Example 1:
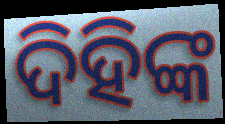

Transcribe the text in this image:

ଦିହିଙ୍କ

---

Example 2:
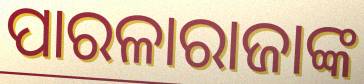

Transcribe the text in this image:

ପାରଳାରାଜାଙ୍କ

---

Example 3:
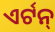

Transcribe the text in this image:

ଏର୍ଟନ୍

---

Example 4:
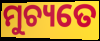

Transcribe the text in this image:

ମୁଚ୍ୟତେ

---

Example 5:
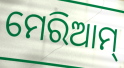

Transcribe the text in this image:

ମେରିଆମ୍